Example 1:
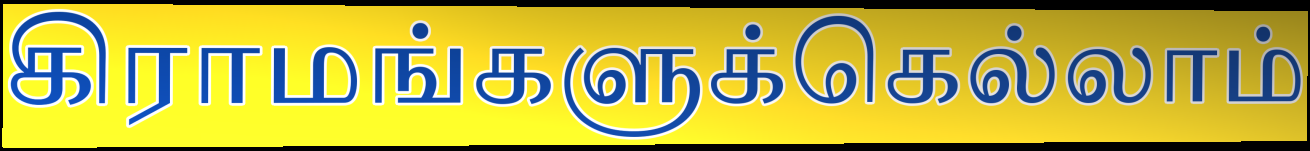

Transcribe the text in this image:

கிராமங்களுக்கெல்லாம்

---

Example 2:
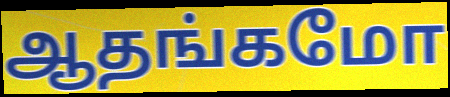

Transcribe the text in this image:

ஆதங்கமோ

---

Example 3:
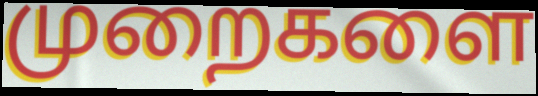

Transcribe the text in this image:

முறைகளை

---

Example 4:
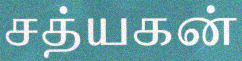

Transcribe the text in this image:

சத்யகன்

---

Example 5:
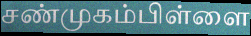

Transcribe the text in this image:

சண்முகம்பிள்ளை